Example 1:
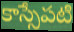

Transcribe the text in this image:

కాస్సేపటి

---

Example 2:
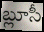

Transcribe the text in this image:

బ్లూసీ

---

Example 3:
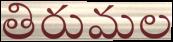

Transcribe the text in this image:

తిరుమల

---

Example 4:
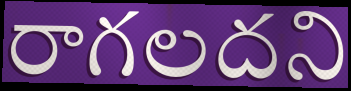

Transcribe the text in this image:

రాగలదని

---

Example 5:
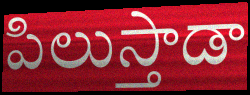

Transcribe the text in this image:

పిలుస్తాడా